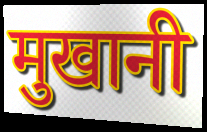
मुखानी